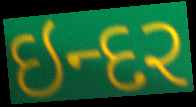
ઇન્દર